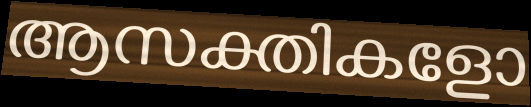
ആസക്തികളോ